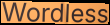
Wordless